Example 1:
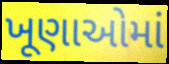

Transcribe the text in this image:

ખૂણાઓમાં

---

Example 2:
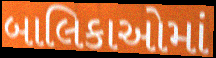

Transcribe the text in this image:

બાલિકાઓમાં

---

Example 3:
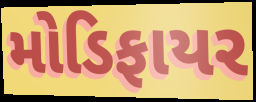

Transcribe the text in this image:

મોડિફાયર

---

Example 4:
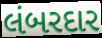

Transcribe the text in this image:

લંબરદાર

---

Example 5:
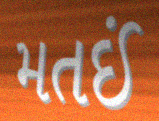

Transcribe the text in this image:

મતઈં